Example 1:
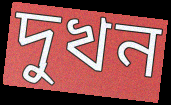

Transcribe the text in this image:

দুখন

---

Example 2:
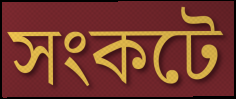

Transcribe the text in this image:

সংকটে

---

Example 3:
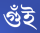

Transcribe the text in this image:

গুঁই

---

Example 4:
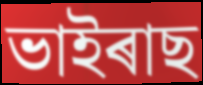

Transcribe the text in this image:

ভাইৰাছ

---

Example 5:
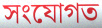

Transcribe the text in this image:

সংযোগত